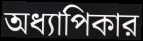
অধ্যাপিকার